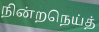
நின்றநெய்த்